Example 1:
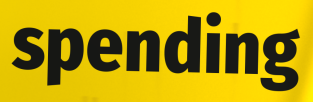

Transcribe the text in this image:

spending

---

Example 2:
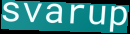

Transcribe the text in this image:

svarup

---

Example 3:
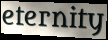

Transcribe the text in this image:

eternity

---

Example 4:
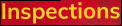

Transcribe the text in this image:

Inspections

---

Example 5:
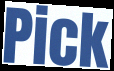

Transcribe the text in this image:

Pick